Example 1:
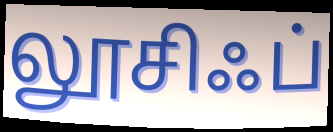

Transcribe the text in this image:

லூசிஃப்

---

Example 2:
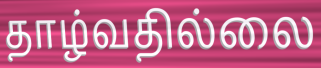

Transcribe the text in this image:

தாழ்வதில்லை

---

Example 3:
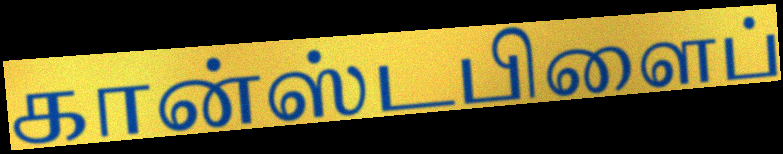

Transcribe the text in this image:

கான்ஸ்டபிளைப்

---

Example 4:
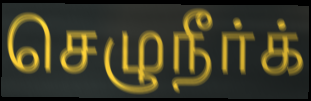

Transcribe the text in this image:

செழுநீர்க்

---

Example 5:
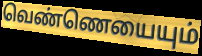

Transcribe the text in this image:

வெண்ணெயையும்